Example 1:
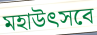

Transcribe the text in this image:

মহাউৎসবে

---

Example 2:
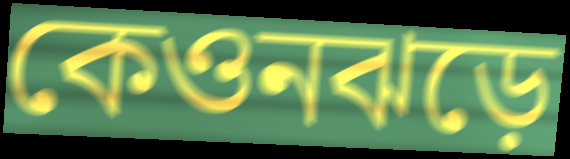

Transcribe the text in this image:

কেওনঝড়ে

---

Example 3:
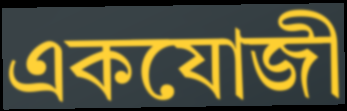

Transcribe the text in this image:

একযোজী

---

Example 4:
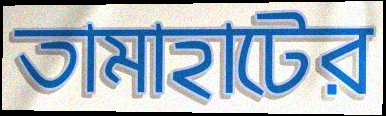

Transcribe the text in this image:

তামাহাটের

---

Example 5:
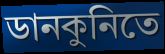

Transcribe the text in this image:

ডানকুনিতে